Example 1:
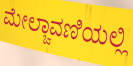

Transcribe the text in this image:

ಮೇಲ್ಚಾವಣಿಯಲ್ಲಿ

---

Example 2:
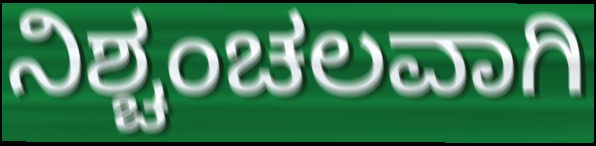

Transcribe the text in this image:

ನಿಶ್ಚಂಚಲವಾಗಿ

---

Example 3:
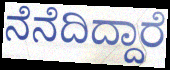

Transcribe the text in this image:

ನೆನೆದಿದ್ದಾರೆ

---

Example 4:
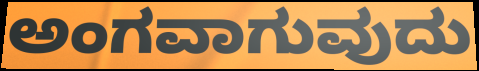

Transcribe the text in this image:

ಅಂಗವಾಗುವುದು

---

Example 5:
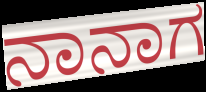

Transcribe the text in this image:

ನಾನಾಗ